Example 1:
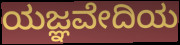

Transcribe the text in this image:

ಯಜ್ಞವೇದಿಯ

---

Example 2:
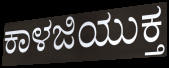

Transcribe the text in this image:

ಕಾಳಜಿಯುಕ್ತ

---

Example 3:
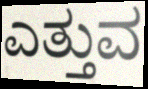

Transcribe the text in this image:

ಎತ್ತುವ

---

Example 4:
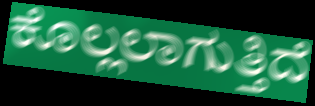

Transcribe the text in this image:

ಕೊಲ್ಲಲಾಗುತ್ತಿದೆ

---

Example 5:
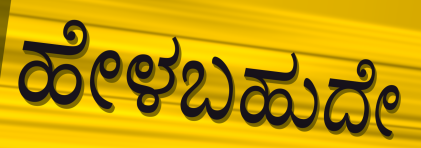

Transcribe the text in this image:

ಹೇಳಬಹುದೇ